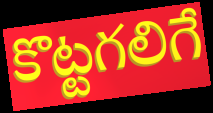
కొట్టగలిగే